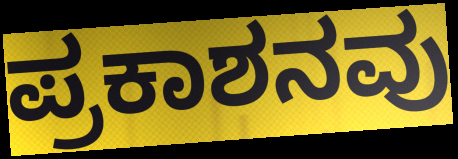
ಪ್ರಕಾಶನವು